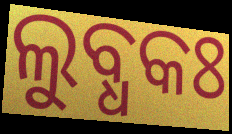
ଲୁବ୍ଧକଃ